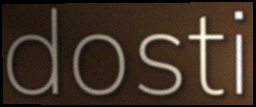
dosti